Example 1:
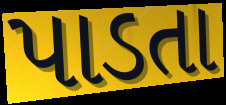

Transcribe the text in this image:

પાડતા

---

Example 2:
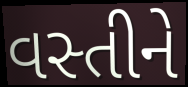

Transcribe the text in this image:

વસ્તીને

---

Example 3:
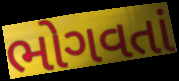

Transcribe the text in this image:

ભોગવતાં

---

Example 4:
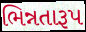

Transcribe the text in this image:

ભિન્નતારૂપ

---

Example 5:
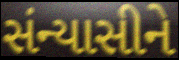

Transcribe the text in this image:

સંન્યાસીને